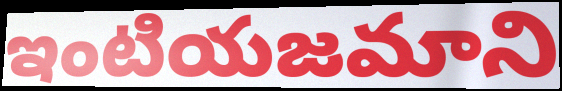
ఇంటియజమాని